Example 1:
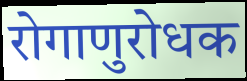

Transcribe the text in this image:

रोगाणुरोधक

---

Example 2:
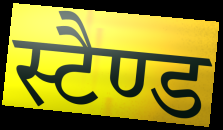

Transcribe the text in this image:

स्टैण्ड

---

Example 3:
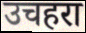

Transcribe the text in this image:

उचहरा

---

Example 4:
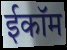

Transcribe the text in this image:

ईकॉम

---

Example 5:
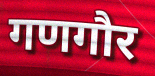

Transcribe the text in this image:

गणगौर